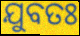
ଯୁବତଃ